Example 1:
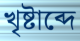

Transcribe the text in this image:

খৃষ্টাব্দে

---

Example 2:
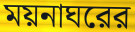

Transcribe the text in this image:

ময়নাঘরের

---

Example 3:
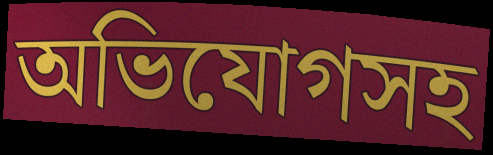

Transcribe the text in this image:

অভিযোগসহ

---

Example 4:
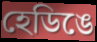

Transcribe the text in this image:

হেডিঙে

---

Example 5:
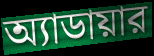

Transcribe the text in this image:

অ্যাডায়ার